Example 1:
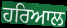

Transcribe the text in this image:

ਹਰਿਆਲ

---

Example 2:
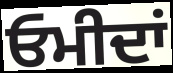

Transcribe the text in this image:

ਓਮੀਦਾਂ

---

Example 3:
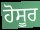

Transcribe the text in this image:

ਹੋਸੂਰ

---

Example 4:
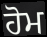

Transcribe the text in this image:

ਹੋਮ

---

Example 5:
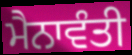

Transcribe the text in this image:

ਮੈਨਾਵੰਤੀ